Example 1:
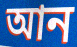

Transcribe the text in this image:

আন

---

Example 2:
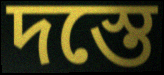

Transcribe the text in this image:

দস্তে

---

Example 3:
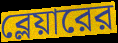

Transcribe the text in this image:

ব্লেয়ারের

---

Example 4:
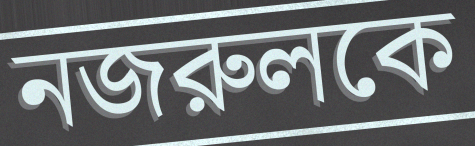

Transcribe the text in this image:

নজরুলকে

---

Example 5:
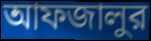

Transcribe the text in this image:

আফজালুর